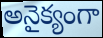
అనైక్యంగా